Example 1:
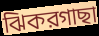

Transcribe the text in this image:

ঝিকরগাছা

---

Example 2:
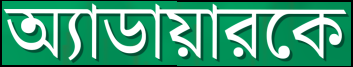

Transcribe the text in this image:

অ্যাডায়ারকে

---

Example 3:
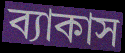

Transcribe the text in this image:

ব্যাকাস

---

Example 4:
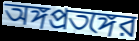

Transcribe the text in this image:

অঙ্গপ্রতঙ্গের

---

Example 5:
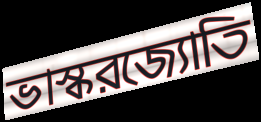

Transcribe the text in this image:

ভাস্করজ্যোতি